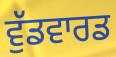
ਵੁੱਡਵਾਰਡ